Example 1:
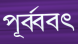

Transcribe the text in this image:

পূর্ব্ববৎ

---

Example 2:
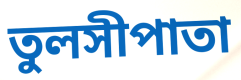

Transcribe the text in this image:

তুলসীপাতা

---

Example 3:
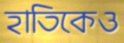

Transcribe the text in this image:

হাতিকেও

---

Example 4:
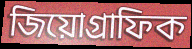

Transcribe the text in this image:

জিয়োগ্রাফিক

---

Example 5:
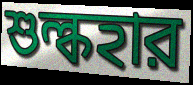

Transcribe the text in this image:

শুল্কহার